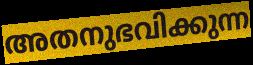
അതനുഭവിക്കുന്ന